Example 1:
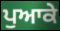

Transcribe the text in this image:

ਪੁਆਕੇ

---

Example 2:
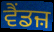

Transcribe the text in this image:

ਵੈਂਡਜ਼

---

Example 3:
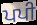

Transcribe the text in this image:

ਪਪੀ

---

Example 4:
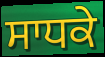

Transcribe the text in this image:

ਸਾਧਕੇ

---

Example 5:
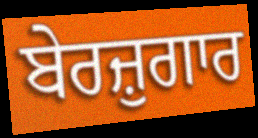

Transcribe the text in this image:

ਬੇਰਜ਼ੁਗਾਰ